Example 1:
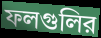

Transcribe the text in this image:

ফলগুলির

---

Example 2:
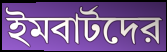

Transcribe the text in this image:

ইমবার্টদের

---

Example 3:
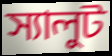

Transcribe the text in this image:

স্যালুট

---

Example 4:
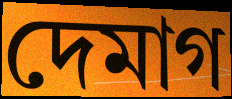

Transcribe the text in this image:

দেমাগ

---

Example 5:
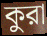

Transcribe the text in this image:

কুরা